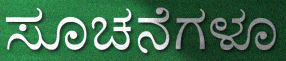
ಸೂಚನೆಗಳೂ